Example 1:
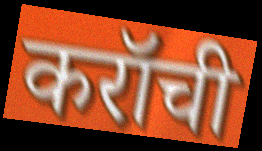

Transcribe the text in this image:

करॉची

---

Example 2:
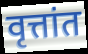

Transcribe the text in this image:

वृत्तांत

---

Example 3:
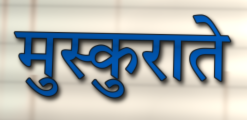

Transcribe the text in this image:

मुस्कुराते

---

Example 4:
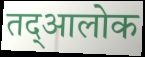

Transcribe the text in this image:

तद्आलोक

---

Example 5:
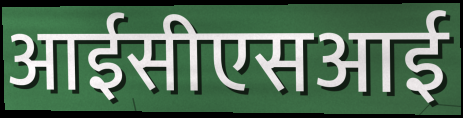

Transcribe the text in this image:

आईसीएसआई